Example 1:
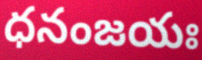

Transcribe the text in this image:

ధనంజయః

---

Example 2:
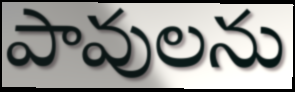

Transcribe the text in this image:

పావులను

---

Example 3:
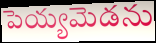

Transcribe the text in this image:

పెయ్యమెడను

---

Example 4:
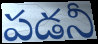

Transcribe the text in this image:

పడనీ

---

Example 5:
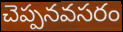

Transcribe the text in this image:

చెప్పనవసరం